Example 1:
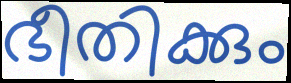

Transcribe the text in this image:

ഭീതിക്കും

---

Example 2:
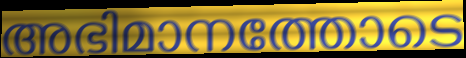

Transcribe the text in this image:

അഭിമാനത്തോടെ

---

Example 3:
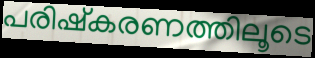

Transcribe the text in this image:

പരിഷ്കരണത്തിലൂടെ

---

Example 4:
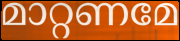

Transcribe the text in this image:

മാറ്റണമേ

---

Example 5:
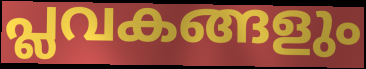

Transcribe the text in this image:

പ്ലവകങ്ങളും